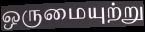
ஒருமையுற்று